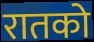
रातको